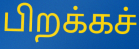
பிறக்கச்